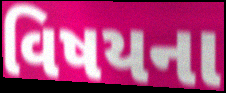
વિષયના